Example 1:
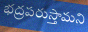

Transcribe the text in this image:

భద్రపరుస్తామని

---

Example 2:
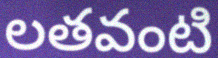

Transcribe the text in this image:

లతవంటి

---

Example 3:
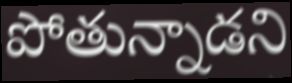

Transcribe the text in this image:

పోతున్నాడని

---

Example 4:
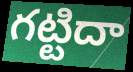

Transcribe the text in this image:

గట్టిదా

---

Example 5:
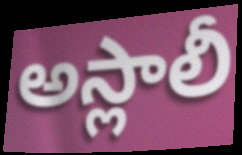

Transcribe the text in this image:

అస్లాలీ